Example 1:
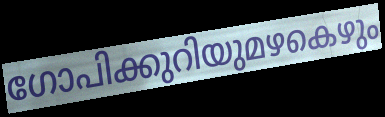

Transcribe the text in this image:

ഗോപിക്കുറിയുമഴകെഴും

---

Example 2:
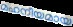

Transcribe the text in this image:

മഹനീയമായ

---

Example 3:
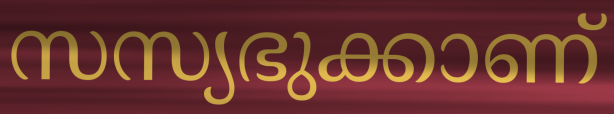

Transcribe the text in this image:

സസ്യഭുക്കാണ്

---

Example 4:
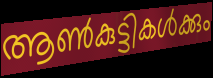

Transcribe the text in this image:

ആൺകുട്ടികൾക്കും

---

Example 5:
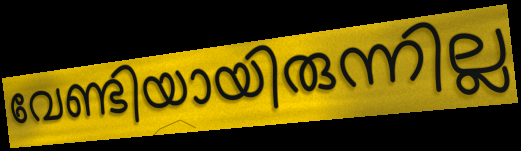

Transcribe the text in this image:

വേണ്ടിയായിരുന്നില്ല